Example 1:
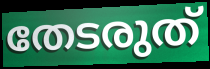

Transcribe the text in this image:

തേടരുത്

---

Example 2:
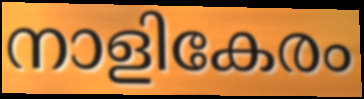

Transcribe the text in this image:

നാളികേരം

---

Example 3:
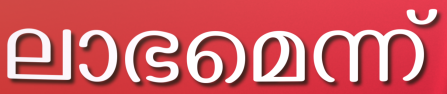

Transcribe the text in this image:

ലാഭമെന്ന്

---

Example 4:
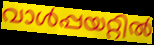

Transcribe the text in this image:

വാൾപ്പയറ്റിൽ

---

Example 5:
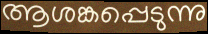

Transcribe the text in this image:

ആശങ്കപ്പെടുന്നു